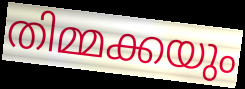
തിമ്മക്കയും